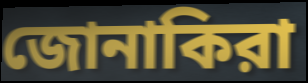
জোনাকিরা